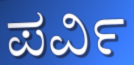
ಪರ್ವಿ